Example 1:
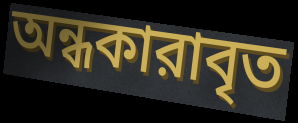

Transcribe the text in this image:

অন্ধকারাবৃত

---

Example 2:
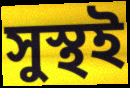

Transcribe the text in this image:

সুস্থই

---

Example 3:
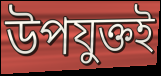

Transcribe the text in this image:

উপযুক্তই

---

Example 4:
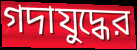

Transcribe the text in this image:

গদাযুদ্ধের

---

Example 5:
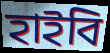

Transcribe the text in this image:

হাইবি